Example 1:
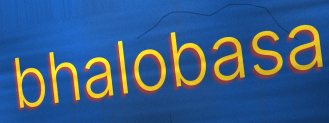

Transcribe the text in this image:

bhalobasa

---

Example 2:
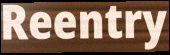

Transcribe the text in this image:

Reentry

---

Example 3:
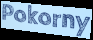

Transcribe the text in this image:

Pokorny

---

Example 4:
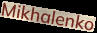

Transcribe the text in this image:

Mikhalenko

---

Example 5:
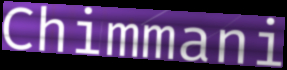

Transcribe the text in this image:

Chimmani